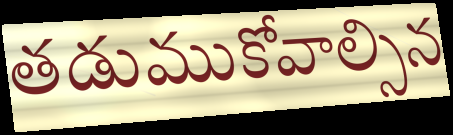
తడుముకోవాల్సిన